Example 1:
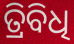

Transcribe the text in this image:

ତ୍ରିବିଧି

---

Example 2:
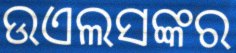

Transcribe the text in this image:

ଉଏଲସଙ୍କର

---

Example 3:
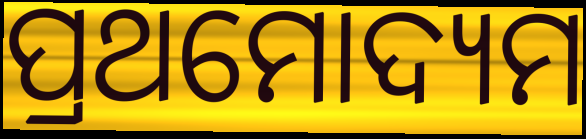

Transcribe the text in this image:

ପ୍ରଥମୋଦ୍ୟମ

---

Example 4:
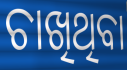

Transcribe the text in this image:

ଚାଖିଥିବା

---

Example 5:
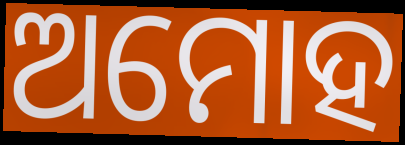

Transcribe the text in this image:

ଅମୋହ